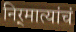
निर्मात्यांचं